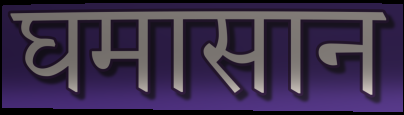
घमासान